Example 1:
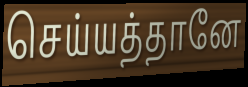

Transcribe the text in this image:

செய்யத்தானே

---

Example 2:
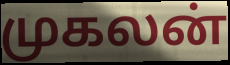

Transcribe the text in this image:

முகலன்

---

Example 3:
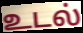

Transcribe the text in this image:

உடல்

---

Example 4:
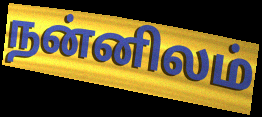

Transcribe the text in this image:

நன்னிலம்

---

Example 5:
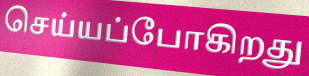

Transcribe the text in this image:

செய்யப்போகிறது